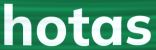
hotas